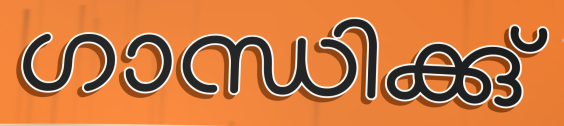
ഗാന്ധിക്കു്